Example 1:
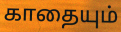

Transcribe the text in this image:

காதையும்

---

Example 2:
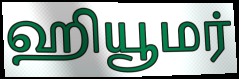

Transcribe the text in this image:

ஹியூமர்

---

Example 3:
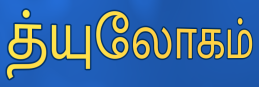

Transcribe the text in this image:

த்யுலோகம்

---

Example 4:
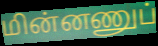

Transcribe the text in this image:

மின்னணுப்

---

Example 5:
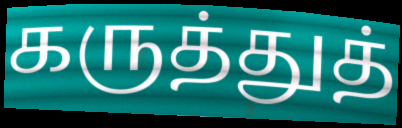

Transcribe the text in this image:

கருத்துத்